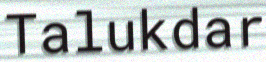
Talukdar